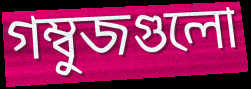
গম্বুজগুলো